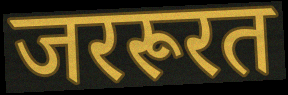
जररूरत